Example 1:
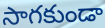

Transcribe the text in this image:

సాగకుండా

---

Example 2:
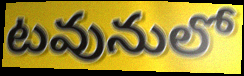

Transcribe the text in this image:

టవునులో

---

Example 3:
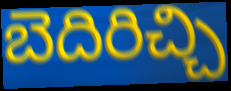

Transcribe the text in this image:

బెదిరిచ్చి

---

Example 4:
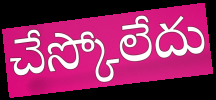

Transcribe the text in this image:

చేస్కోలేదు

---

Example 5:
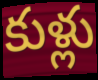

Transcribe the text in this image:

కుళ్లు